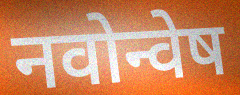
नवोन्वेष